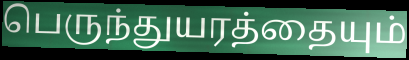
பெருந்துயரத்தையும்